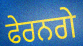
ਫੇਰਨਗੇ